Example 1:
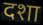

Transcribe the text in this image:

दशा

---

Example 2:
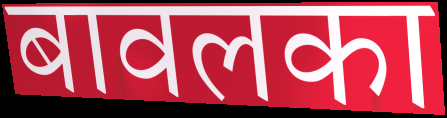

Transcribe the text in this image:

बावलका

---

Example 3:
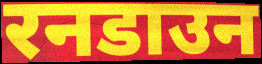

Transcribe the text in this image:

रनडाउन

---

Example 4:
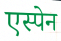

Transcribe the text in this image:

एस्पेन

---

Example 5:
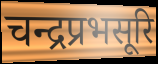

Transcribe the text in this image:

चन्द्रप्रभसूरि